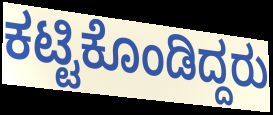
ಕಟ್ಟಿಕೊಂಡಿದ್ದರು